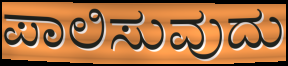
ಪಾಲಿಸುವುದು